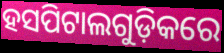
ହସପିଟାଲଗୁଡ଼ିକରେ